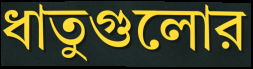
ধাতুগুলোর